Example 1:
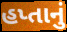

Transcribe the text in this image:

હપ્તાનું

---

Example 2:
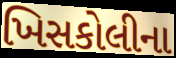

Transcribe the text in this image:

ખિસકોલીના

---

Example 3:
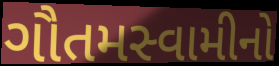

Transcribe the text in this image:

ગૌતમસ્વામીનો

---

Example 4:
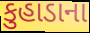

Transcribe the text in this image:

કુહાડાના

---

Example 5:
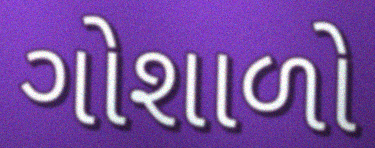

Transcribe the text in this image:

ગોશાળો